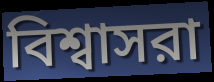
বিশ্বাসরা